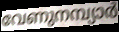
വേണുനമ്പ്യാർ